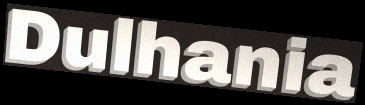
Dulhania